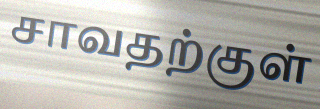
சாவதற்குள்